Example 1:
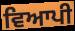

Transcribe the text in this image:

ਵਿਆਪੀ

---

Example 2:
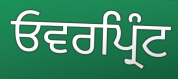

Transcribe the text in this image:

ਓਵਰਪ੍ਰਿੰਟ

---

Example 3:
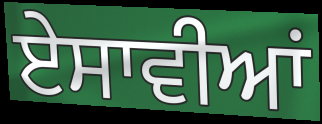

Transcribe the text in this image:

ਏਸਾਵੀਆਂ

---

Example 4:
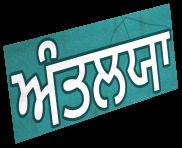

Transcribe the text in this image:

ਅੰਤਲਯਾ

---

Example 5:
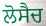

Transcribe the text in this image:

ਲੋਸੈਚ